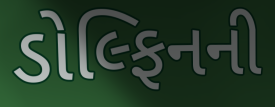
ડોલ્ફિનની